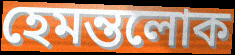
হেমন্তলোক